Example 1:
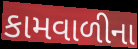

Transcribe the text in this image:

કામવાળીના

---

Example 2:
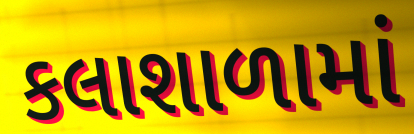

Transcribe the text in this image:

કલાશાળામાં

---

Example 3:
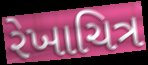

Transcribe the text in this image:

રેખાચિત્ર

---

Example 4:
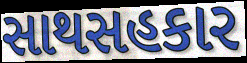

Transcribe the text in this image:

સાથસહકાર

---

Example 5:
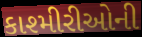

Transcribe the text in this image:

કાશ્મીરીઓની